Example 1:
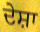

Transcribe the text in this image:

ਦੇਸ਼ਾ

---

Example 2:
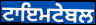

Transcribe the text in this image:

ਟਾਇਮਟੇਬਲ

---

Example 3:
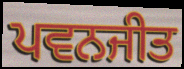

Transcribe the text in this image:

ਪਵਨਜੀਤ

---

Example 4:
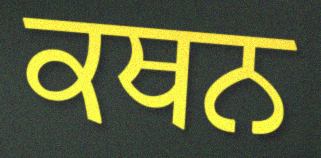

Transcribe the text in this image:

ਕਥਨ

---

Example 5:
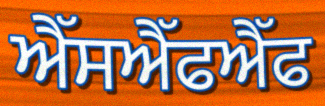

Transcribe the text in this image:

ਐੱਸਐੱਫਐੱਫ